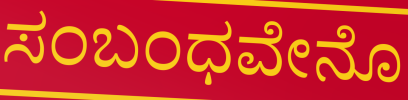
ಸಂಬಂಧವೇನೊ